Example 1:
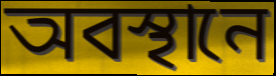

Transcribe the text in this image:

অবস্থানে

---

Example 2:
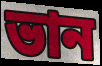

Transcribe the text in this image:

ভান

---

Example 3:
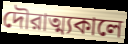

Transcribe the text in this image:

দৌরাত্ম্যকালে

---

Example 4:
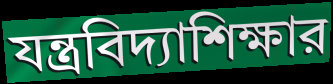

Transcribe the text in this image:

যন্ত্রবিদ্যাশিক্ষার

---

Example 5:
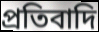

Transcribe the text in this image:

প্রতিবাদি